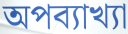
অপব্যাখ্যা